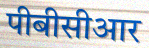
पीबीसीआर